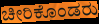
ಚೀರಿಕೊಂಡರು